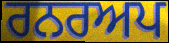
ਰਨਰਅਪ